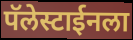
पॅलेस्टाईनला